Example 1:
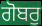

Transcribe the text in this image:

ਗੋਬਰੁ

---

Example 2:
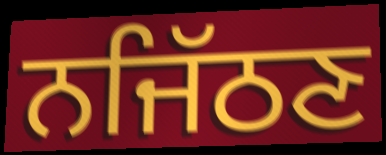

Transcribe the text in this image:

ਨਜਿੱਠਣ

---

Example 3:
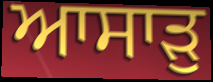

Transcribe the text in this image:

ਆਸਾੜੁ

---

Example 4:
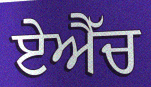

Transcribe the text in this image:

ਏਐੱਚ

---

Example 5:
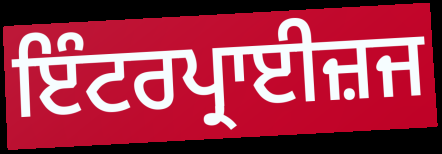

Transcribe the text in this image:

ਇੰਟਰਪ੍ਰਾਈਜ਼ਜ